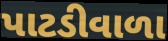
પાટડીવાળા